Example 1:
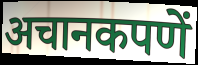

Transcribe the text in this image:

अचानकपणें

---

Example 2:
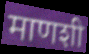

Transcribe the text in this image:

माणशी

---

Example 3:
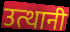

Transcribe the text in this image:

उत्थानी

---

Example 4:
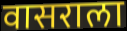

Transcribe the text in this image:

वासराला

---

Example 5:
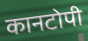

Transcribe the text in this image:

कानटोपी